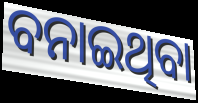
ବନାଇଥିବା